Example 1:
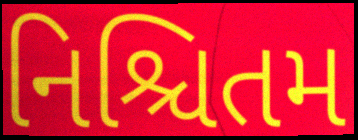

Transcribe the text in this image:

નિશ્ચિતમ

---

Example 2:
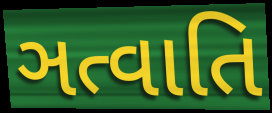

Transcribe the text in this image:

ઞત્વાતિ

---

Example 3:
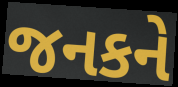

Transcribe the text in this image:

જનકને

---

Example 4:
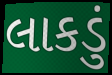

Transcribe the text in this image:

લાકડું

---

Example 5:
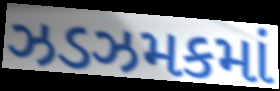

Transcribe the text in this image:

ઝડઝમકમાં